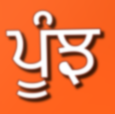
ਪੂੰਝ